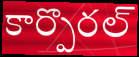
కార్పొరల్